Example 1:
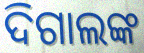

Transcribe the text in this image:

ଦିଗାଲଙ୍କ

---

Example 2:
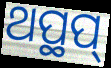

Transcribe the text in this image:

ଥପ୍ଥପ୍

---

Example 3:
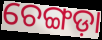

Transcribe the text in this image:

ଚେଙ୍ଗଡ଼ା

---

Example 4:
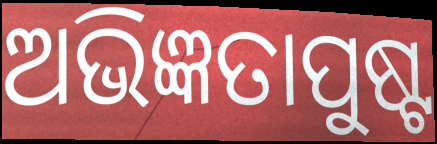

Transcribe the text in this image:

ଅଭିଜ୍ଞତାପୁଷ୍ଟ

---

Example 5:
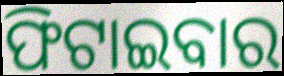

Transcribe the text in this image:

ଫିଟାଇବାର